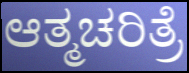
ಆತ್ಮಚರಿತ್ರೆ